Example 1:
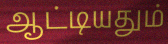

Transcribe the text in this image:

ஆட்டியதும்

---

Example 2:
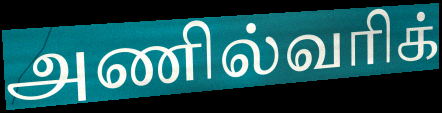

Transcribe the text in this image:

அணில்வரிக்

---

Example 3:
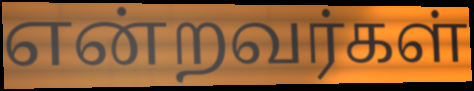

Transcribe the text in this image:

என்றவர்கள்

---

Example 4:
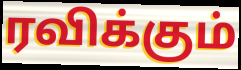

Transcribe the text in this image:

ரவிக்கும்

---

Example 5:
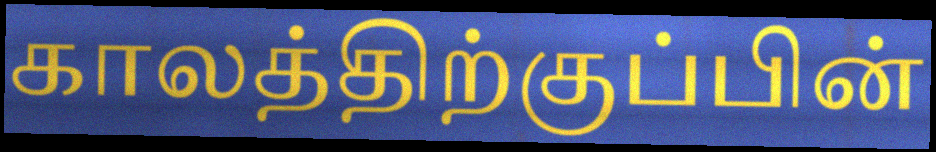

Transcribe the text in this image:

காலத்திற்குப்பின்